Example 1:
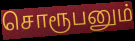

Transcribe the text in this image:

சொரூபனும்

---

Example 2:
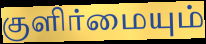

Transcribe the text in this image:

குளிர்மையும்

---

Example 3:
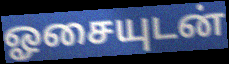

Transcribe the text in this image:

ஓசையுடன்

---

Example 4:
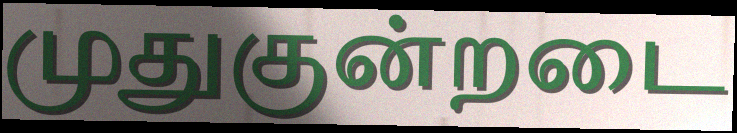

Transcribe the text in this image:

முதுகுன்றடை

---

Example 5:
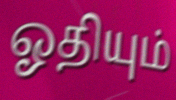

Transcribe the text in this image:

ஓதியும்